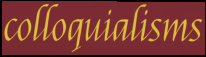
colloquialisms